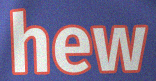
hew